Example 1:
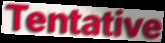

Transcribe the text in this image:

Tentative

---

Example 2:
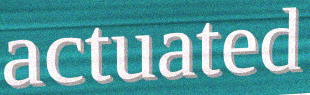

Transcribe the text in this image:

actuated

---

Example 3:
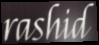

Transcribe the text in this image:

rashid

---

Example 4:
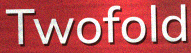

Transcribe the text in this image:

Twofold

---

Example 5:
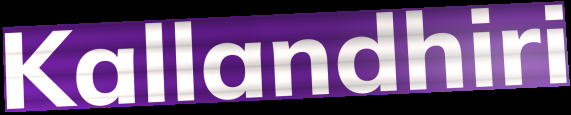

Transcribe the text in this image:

Kallandhiri